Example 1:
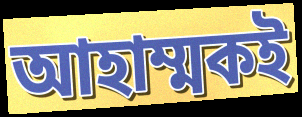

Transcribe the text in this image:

আহাম্মকই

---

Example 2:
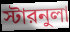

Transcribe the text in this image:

স্টারনুলা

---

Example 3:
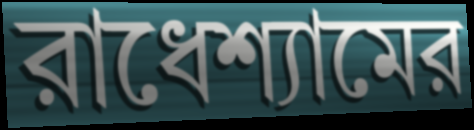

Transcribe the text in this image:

রাধেশ্যামের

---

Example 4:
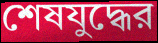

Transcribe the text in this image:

শেষযুদ্ধের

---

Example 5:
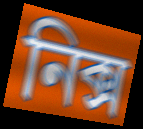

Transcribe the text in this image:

নিক্স